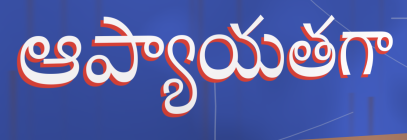
ఆప్యాయతగా